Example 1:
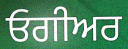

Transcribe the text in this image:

ਓਗੀਅਰ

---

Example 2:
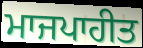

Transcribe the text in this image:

ਮਾਜਪਾਹੀਤ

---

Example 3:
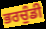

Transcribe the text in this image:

ਭਰਚੁੰਡੀ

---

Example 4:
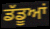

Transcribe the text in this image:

ਡੱਡੂਆਂ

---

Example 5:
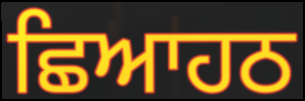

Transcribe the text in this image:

ਛਿਆਹਠ